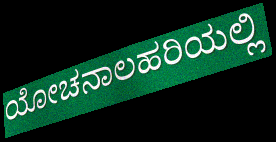
ಯೋಚನಾಲಹರಿಯಲ್ಲಿ